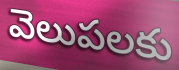
వెలుపలకు